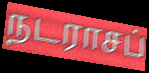
நடராசப்